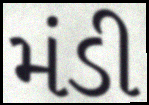
મંડી